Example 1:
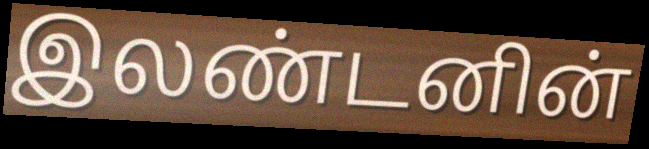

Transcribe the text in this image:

இலண்டனின்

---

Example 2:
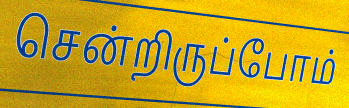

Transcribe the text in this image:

சென்றிருப்போம்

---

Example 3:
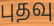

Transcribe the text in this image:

புதவு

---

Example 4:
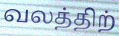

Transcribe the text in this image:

வலத்திற்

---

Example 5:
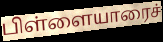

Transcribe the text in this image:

பிள்ளையாரைச்